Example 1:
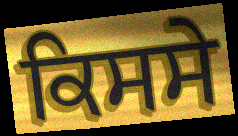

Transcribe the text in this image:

ਕਿਸਸੇ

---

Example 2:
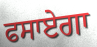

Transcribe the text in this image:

ਫਸਾਏਗਾ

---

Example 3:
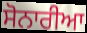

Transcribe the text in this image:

ਸੋਨਾਰੀਆ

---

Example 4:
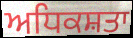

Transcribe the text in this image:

ਅਧਿਕਸ਼ਤਾ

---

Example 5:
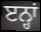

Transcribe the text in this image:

ੲਨ੍ਹਾਂ